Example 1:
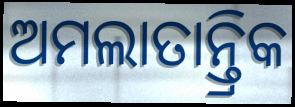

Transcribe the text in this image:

ଅମଲାତାନ୍ତ୍ରିକ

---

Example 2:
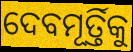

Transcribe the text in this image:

ଦେବମୂର୍ତ୍ତିକୁ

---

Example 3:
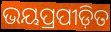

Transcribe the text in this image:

ଭୟପ୍ରପୀଡ଼ିତ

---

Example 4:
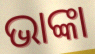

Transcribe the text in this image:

ଭାଙ୍କା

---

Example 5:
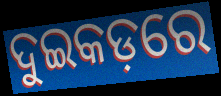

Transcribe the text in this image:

ଦୁଇକଡ଼ରେ